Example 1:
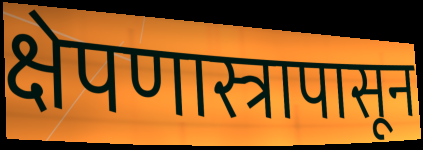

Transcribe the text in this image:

क्षेपणास्त्रापासून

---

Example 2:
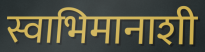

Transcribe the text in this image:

स्वाभिमानाशी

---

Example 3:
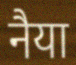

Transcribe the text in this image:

नैया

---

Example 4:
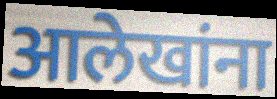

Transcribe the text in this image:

आलेखांना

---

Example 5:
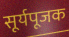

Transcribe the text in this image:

सूर्यपूजक